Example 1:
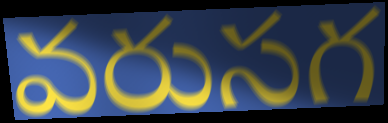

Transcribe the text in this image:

వరుసగ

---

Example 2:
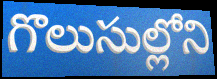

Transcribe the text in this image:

గొలుసుల్లోని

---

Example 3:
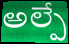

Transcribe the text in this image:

అల్పే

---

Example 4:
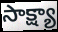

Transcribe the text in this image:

సాక్ష్యా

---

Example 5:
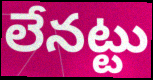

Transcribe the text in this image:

లేనట్టు